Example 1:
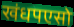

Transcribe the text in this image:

खंधपएसो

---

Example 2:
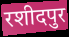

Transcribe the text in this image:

रशीदपुर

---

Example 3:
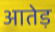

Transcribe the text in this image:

आतेड़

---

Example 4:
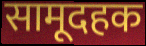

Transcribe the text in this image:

सामूदहक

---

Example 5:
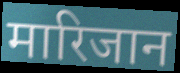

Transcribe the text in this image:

मारिजान